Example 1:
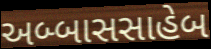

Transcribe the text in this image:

અબ્બાસસાહેબ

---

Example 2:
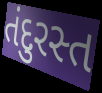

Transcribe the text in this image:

તંદુરસ્ત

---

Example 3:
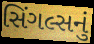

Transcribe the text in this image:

સિંગલ્સનું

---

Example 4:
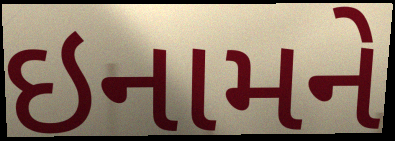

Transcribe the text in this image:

ઇનામને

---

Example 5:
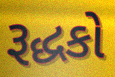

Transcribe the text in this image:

રૂદ્ધકો